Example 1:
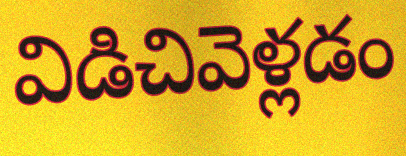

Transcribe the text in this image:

విడిచివెళ్లడం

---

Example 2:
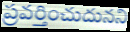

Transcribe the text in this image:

ప్రవర్తించుదునని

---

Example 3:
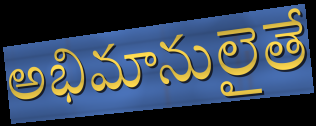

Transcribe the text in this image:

అభిమానులైతే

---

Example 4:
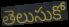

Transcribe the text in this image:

తెలుసుకో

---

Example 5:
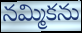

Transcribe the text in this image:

నమ్మికను